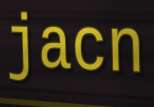
jacn